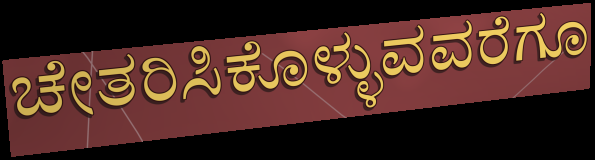
ಚೇತರಿಸಿಕೊಳ್ಳುವವರೆಗೂ